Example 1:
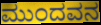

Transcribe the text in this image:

ಮುಂದವನ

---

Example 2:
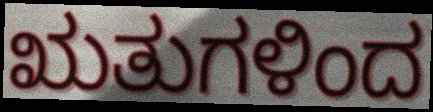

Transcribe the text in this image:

ಋತುಗಳಿಂದ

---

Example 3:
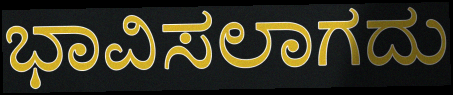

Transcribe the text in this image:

ಭಾವಿಸಲಾಗದು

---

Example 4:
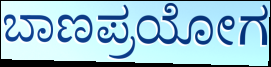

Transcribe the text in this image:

ಬಾಣಪ್ರಯೋಗ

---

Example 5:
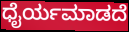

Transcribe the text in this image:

ಧೈರ್ಯಮಾಡದೆ